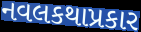
નવલકથાપ્રકાર